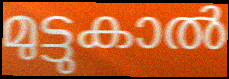
മുട്ടുകാൽ